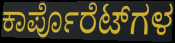
ಕಾರ್ಪೊರೆಟ್‌ಗಳ